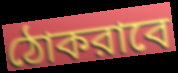
ঠোকরাবে